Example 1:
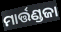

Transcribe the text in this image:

ମାର୍ତ୍ତଣ୍ଡଜା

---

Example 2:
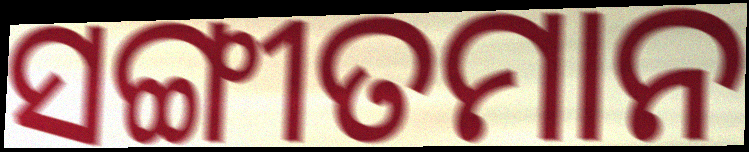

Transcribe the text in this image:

ସଙ୍ଗୀତମାନ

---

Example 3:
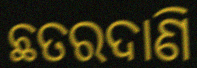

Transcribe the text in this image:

ଛତରଦାଣି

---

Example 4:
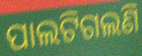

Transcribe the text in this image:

ପାଲଟିଗଲଣି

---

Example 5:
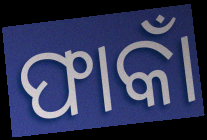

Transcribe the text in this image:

ଫାକାଁ